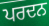
ਪਰਦਨ